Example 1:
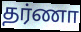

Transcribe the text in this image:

தர்ணா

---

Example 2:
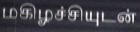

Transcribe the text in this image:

மகிழச்சியுடன்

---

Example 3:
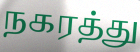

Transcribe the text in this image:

நகரத்து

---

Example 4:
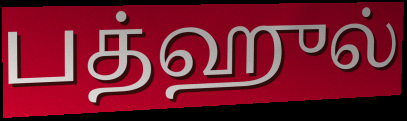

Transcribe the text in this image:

பத்ஹுல்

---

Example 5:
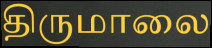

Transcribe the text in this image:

திருமாலை